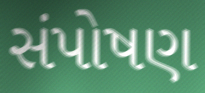
સંપોષણ